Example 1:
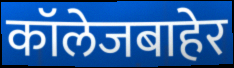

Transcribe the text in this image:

कॉलेजबाहेर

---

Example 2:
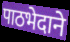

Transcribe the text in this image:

पाठभेदाने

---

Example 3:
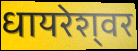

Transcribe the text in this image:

धायरेश्वर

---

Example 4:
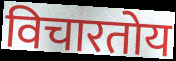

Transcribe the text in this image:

विचारतोय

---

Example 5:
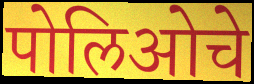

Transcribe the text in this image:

पोलिओचे